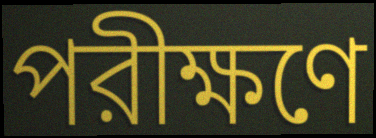
পরীক্ষণে